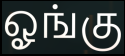
ஓங்கு